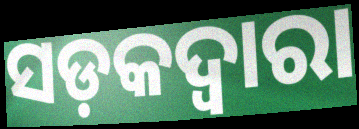
ସଡ଼କଦ୍ୱାରା